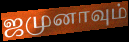
ஜமுனாவும்